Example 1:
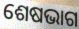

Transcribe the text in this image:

ଶେଷଭାଗ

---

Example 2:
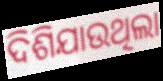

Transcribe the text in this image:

ଦିଶିଯାଉଥିଲା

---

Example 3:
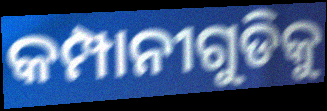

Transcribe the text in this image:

କମ୍ପାନୀଗୁଡିକୁ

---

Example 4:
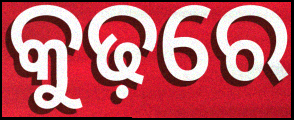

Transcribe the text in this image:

କୁଢ଼ରେ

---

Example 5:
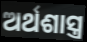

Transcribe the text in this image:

ଅର୍ଥଶାସ୍ତ୍ର